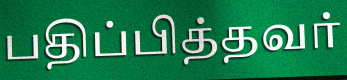
பதிப்பித்தவர்